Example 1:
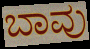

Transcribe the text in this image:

ಬಾವು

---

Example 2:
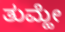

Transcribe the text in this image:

ತುಮ್ಹೇ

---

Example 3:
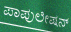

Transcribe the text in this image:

ಪಾಪುಲೇಷನ್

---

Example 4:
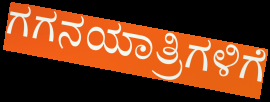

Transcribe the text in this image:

ಗಗನಯಾತ್ರಿಗಳಿಗೆ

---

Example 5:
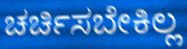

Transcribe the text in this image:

ಚರ್ಚಿಸಬೇಕಿಲ್ಲ